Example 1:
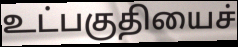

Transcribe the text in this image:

உட்பகுதியைச்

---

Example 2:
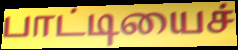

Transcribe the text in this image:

பாட்டியைச்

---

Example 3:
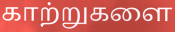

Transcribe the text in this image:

காற்றுகளை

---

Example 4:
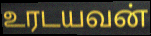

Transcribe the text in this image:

உரடயவன்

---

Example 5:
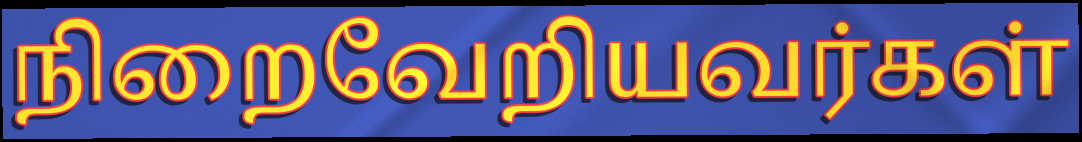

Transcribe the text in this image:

நிறைவேறியவர்கள்